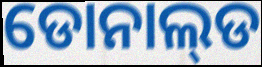
ଡୋନାଲ୍‌ଡ